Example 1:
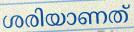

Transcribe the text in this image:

ശരിയാണത്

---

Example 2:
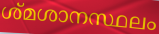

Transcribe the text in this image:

ശ്മശാനസ്ഥലം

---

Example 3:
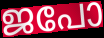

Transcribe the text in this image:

ജപോ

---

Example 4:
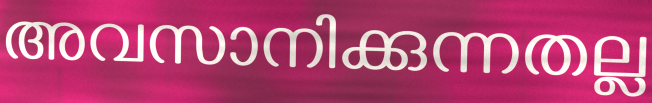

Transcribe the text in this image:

അവസാനിക്കുന്നതല്ല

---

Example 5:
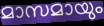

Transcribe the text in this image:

മാസമായും